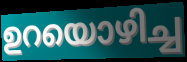
ഉറയൊഴിച്ച